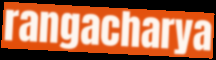
rangacharya